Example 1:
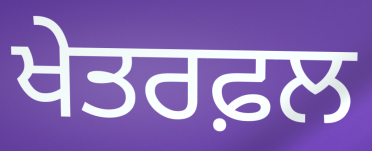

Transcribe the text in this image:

ਖੇਤਰਫ਼ਲ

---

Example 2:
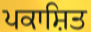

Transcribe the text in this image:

ਪਕਾਸ਼ਿਤ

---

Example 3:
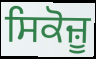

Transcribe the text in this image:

ਸਿਕੋਜ਼ੂ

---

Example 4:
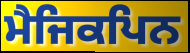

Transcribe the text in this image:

ਮੈਜਿਕਪਿਨ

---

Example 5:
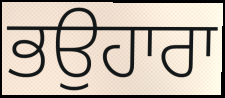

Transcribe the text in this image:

ਭਉਹਾਰਾ